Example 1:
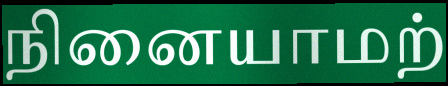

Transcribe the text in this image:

நினையாமற்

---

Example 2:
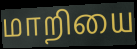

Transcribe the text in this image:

மாறியை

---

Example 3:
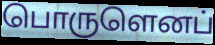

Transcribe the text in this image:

பொருளெனப்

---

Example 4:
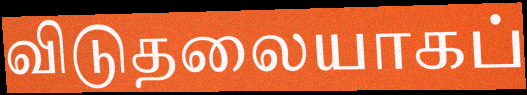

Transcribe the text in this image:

விடுதலையாகப்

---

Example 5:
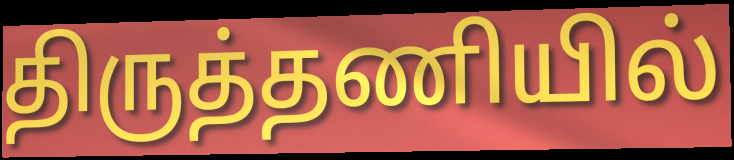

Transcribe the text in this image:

திருத்தணியில்